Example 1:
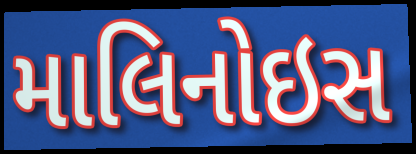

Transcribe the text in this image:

માલિનોઇસ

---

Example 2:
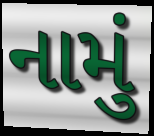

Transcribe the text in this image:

નામું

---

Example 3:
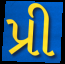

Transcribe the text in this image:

પ્રી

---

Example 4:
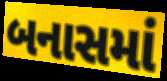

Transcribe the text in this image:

બનાસમાં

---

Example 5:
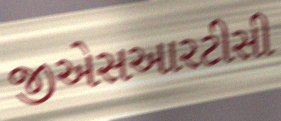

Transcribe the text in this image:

જીએસઆરટીસી